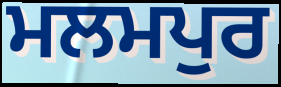
ਮਲਮਪੁਰ